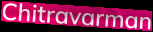
Chitravarman